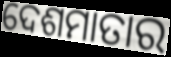
ଦେଶମାତାର